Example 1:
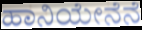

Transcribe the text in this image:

ಹಾನಿಯೇನೆನೆ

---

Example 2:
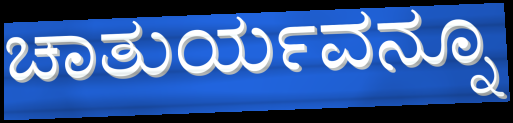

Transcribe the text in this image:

ಚಾತುರ್ಯವನ್ನೂ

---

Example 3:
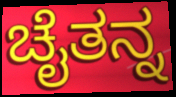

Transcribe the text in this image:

ಚೈತನ್ನ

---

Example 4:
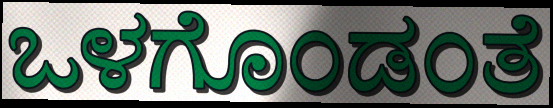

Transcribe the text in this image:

ಒಳಗೊಂಡಂತೆ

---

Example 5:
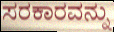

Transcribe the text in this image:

ಸರಕಾರವನ್ನು